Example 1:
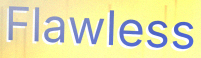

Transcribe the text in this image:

Flawless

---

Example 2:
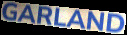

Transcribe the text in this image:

GARLAND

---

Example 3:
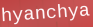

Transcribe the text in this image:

hyanchya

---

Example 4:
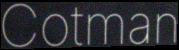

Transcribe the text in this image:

Cotman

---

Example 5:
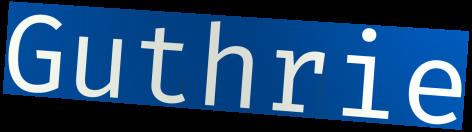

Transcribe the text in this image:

Guthrie